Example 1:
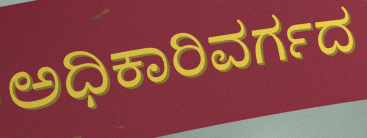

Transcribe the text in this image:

ಅಧಿಕಾರಿವರ್ಗದ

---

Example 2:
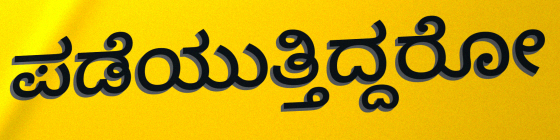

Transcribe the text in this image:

ಪಡೆಯುತ್ತಿದ್ದರೋ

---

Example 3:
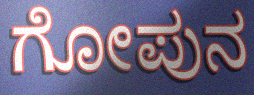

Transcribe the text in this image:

ಗೋಪುನ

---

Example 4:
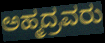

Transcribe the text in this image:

ಅಹ್ಮದ್ರವರು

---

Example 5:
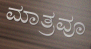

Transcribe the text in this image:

ಮಾತ್ರವೂ